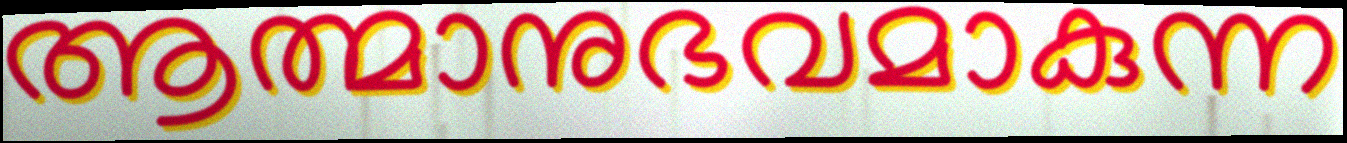
ആത്മാനുഭവമാകുന്ന